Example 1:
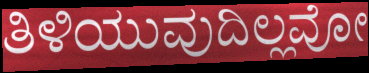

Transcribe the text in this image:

ತಿಳಿಯುವುದಿಲ್ಲವೋ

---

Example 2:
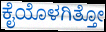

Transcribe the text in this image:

ಕೈಯೊಳಗಿತ್ತೋ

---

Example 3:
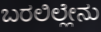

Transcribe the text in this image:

ಬರಲಿಲ್ಲೇನು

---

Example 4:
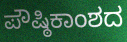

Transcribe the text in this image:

ಪೌಷ್ಠಿಕಾಂಶದ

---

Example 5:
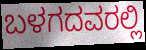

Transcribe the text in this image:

ಬಳಗದವರಲ್ಲಿ